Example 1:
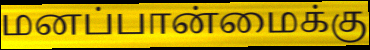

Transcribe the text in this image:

மனப்பான்மைக்கு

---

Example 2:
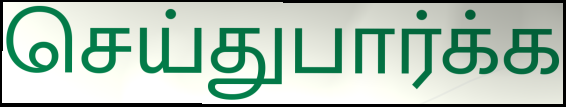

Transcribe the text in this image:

செய்துபார்க்க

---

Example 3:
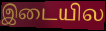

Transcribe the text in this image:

இடையில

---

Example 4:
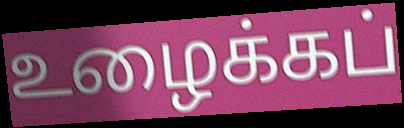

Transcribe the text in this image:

உழைக்கப்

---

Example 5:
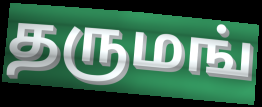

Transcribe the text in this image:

தருமங்